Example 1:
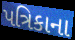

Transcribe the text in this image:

પત્રિકાના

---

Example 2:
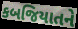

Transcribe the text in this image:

કબજિયાતને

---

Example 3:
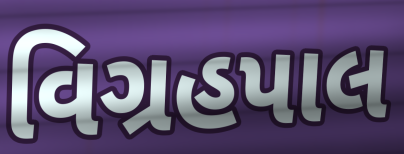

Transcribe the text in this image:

વિગ્રહપાલ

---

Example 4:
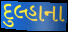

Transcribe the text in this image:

દુલ્હાના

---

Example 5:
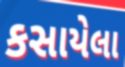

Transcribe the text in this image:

કસાયેલા